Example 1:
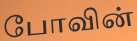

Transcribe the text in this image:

போவின்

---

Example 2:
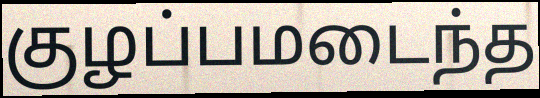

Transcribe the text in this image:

குழப்பமடைந்த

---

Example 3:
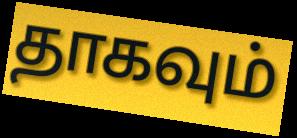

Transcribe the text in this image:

தாகவும்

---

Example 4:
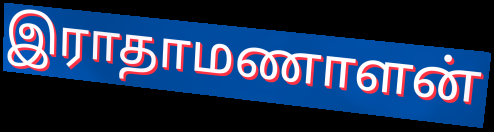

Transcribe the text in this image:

இராதாமணாளன்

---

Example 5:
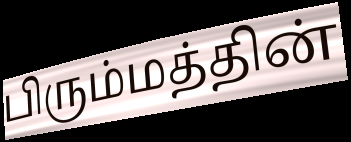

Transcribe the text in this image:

பிரும்மத்தின்